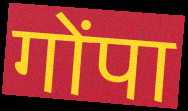
गोंपा